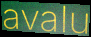
avalu